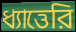
ধ্যাত্তেরি